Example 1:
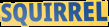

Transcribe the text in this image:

SQUIRREL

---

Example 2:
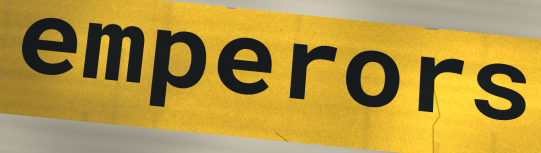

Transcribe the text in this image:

emperors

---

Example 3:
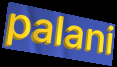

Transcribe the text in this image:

palani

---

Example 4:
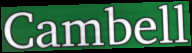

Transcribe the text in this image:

Cambell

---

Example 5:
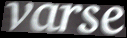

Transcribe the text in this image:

varse